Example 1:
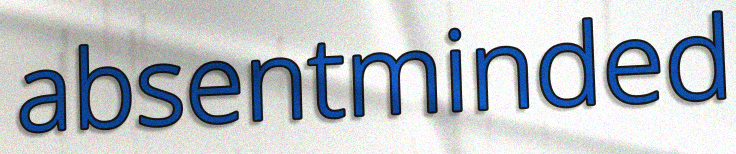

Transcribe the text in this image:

absentminded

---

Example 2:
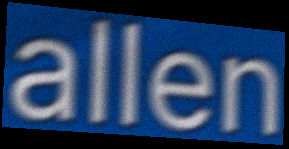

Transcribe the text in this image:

allen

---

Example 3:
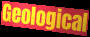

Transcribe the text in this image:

Geological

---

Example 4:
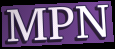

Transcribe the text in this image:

MPN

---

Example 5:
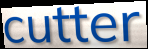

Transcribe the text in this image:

cutter